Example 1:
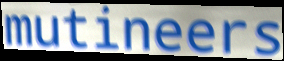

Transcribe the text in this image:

mutineers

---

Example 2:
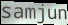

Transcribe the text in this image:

samjun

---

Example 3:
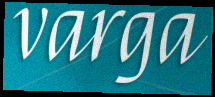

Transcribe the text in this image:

varga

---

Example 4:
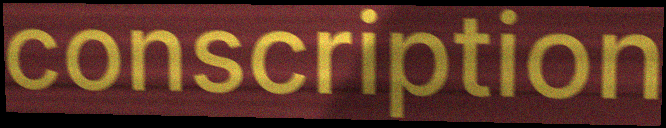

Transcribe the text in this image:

conscription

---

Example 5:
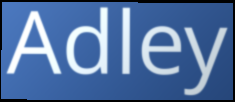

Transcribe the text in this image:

Adley